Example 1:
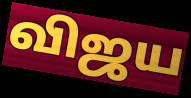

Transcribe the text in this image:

விஜய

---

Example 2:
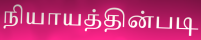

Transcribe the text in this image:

நியாயத்தின்படி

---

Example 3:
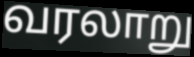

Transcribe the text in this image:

வரலாறு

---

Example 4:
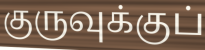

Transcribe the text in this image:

குருவுக்குப்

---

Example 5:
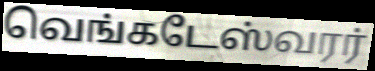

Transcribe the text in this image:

வெங்கடேஸ்வரர்